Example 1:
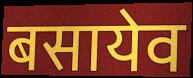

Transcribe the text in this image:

बसायेव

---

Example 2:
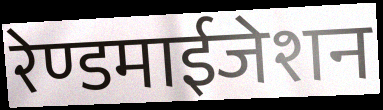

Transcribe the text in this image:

रेण्डमाईजेशन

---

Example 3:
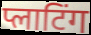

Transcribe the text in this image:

प्लाटिंग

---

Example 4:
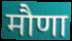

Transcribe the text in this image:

मौणा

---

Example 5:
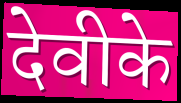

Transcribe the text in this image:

देवीके